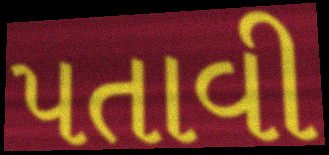
પતાવી